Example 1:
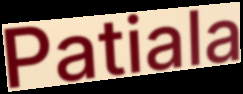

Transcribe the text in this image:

Patiala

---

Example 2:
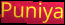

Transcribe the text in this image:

Puniya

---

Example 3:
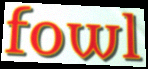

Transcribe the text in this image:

fowl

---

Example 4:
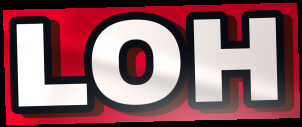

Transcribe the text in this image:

LOH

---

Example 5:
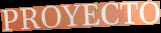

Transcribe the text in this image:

PROYECTO